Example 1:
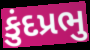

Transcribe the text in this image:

કુંદપ્રભુ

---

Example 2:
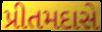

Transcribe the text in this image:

પ્રીતમદાસે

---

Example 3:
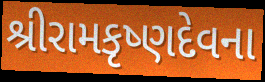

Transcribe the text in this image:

શ્રીરામકૃષ્ણદેવના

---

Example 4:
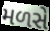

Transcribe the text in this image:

મળસે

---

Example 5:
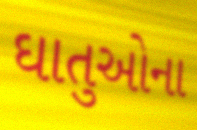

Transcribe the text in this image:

ઘાતુઓના